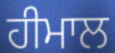
ਹੀਮਾਲ